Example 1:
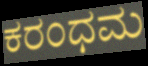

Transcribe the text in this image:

ಕರಂಧಮ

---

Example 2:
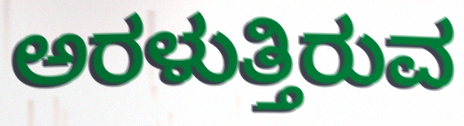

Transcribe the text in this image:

ಅರಳುತ್ತಿರುವ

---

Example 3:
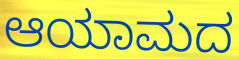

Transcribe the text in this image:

ಆಯಾಮದ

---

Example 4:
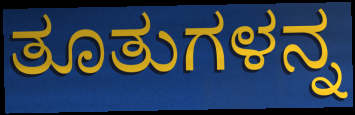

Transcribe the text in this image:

ತೂತುಗಳನ್ನ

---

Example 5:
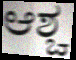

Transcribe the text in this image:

ಆಶ್ಚ